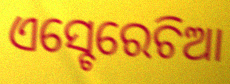
ଏସ୍ଚେରେଚିଆ